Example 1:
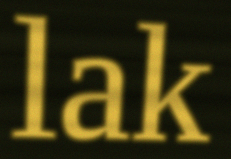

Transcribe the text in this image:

lak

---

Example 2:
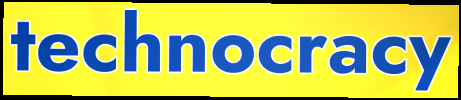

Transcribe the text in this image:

technocracy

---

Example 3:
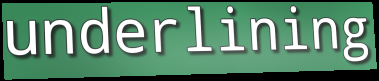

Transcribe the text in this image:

underlining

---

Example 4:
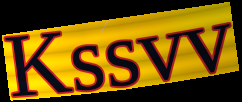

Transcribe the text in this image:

Kssvv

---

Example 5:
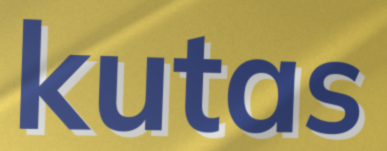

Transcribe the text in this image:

kutas